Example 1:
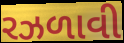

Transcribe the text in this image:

રઝળાવી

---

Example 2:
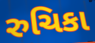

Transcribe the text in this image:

રુચિકા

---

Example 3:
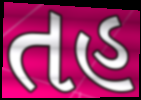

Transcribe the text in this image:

તહ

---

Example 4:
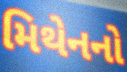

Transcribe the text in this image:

મિથેનનો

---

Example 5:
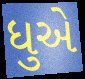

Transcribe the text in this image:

ધુએ